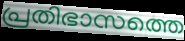
പ്രതിഭാസത്തെ